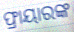
ଫ୍ରାୟାରଙ୍କ